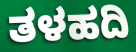
ತಳಹದಿ